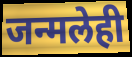
जन्मलेही